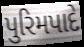
પુરિમપાદે